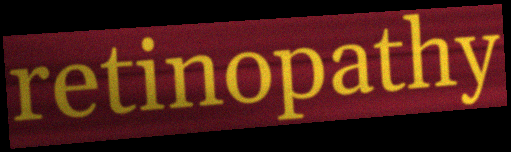
retinopathy